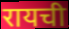
रायची